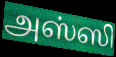
அஸ்ஸி